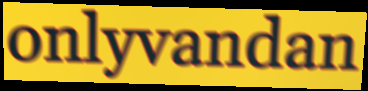
onlyvandan